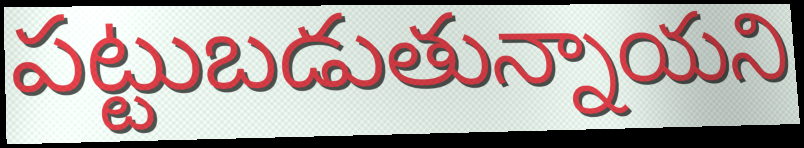
పట్టుబడుతున్నాయని